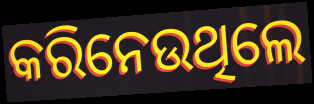
କରିନେଉଥିଲେ